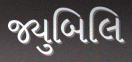
જ્યુબિલિ